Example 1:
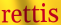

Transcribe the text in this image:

rettis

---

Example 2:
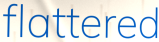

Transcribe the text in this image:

flattered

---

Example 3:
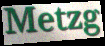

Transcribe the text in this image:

Metzg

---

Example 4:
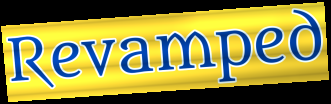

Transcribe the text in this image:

Revamped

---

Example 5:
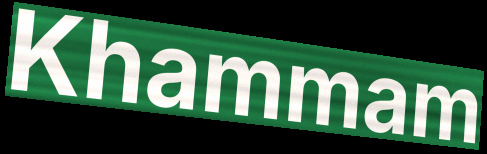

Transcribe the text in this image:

Khammam